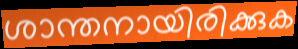
ശാന്തനായിരിക്കുക